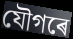
যৌগৰে